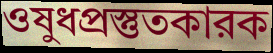
ওষুধপ্রস্তুতকারক